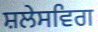
ਸ਼ਲੇਸਵਿਗ